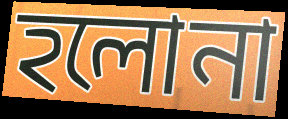
হলোনা